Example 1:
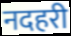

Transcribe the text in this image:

नदहरी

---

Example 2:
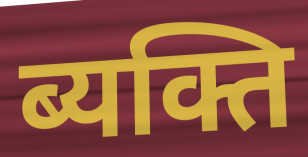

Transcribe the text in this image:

ब्यक्ति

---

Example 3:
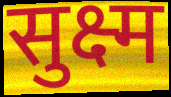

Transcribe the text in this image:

सुक्ष्म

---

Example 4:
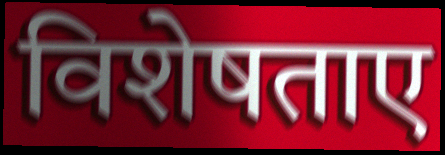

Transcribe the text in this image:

विशेषताए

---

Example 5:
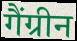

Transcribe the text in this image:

गैंग्रीन